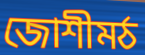
জোশীমঠ